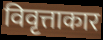
विवृत्ताकार